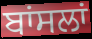
ਬਾਂਸਲਾਂ